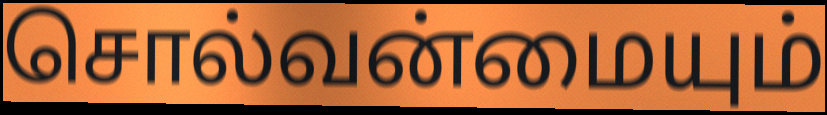
சொல்வன்மையும்